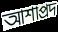
আশাপ্রদ